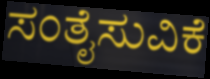
ಸಂತೈಸುವಿಕೆ